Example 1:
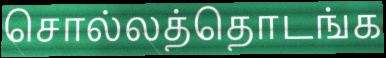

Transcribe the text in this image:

சொல்லத்தொடங்க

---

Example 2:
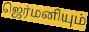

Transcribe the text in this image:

ஜெர்மனியும்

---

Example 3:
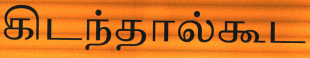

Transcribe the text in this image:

கிடந்தால்கூட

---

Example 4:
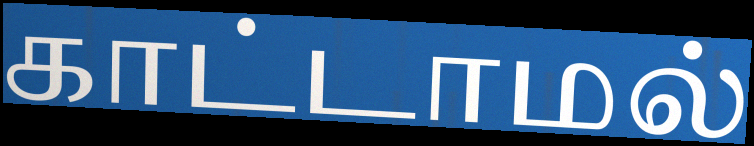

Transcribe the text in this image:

காட்டாமல்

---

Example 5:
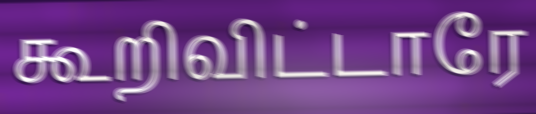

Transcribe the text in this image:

கூறிவிட்டாரே